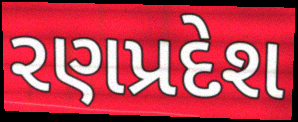
રણપ્રદેશ